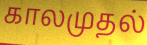
காலமுதல்